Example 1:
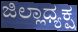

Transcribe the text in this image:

ಜಿಲ್ಲಾಧ್ಯಕ್ಷ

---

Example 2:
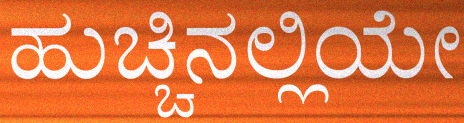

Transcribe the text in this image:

ಹುಚ್ಚಿನಲ್ಲಿಯೇ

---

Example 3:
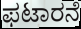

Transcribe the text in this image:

ಫಟಾರನೆ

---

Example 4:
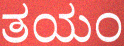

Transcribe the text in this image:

ತಯಂ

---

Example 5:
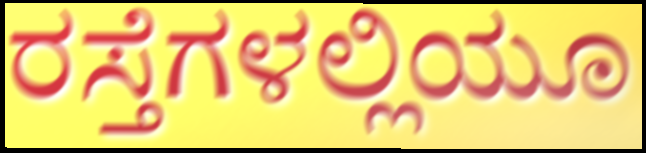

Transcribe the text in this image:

ರಸ್ತೆಗಳಲ್ಲಿಯೂ